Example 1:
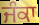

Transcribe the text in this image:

ਜੰਕਾ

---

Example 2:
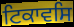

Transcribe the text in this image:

ਟਿਕਾਵਸਿ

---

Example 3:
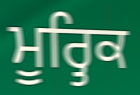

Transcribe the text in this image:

ਮੂਰ੍ਤਿਕ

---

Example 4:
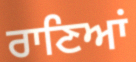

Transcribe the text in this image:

ਰਾਣਿਆਂ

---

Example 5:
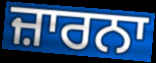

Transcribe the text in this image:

ਜ਼ਾਰਨਾ